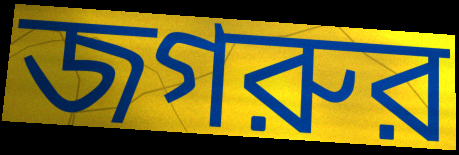
জগরুর